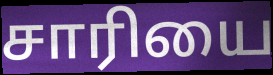
சாரியை